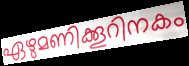
ഏഴുമണിക്കൂറിനകം